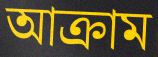
আক্রাম